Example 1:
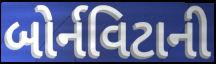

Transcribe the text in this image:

બોર્નવિટાની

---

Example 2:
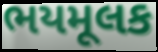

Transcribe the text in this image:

ભયમૂલક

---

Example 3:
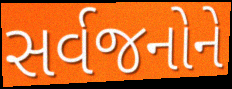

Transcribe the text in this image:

સર્વજનોને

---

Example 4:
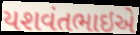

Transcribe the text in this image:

યશવંતભાઇએ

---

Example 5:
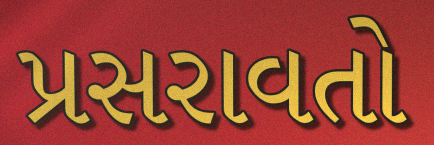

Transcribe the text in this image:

પ્રસરાવતો